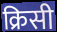
क्रिसी